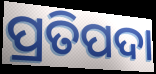
ପ୍ରତିପଦା